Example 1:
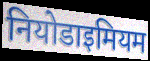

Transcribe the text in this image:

नियोडाइमियम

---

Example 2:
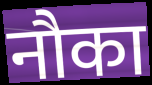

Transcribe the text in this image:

नौका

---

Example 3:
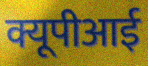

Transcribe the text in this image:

क्यूपीआई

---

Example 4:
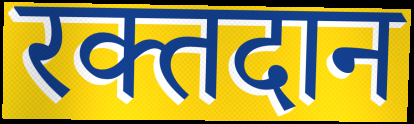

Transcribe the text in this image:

रक्तदान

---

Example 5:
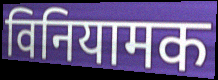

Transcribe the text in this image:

विनियामक